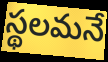
స్థలమనే